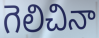
గెలిచినా